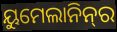
ୟୁମେଲାନିନ୍‌ର